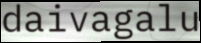
daivagalu